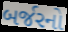
બર્જરનો